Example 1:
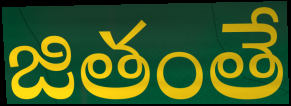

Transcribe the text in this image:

జితంతే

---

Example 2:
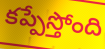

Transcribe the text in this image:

కప్పేస్తోంది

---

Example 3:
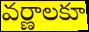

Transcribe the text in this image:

వర్ణాలకూ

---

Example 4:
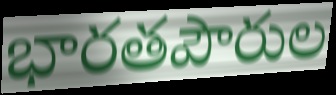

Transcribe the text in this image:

భారతపౌరుల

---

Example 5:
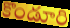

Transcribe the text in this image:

కొండూరి